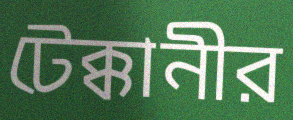
টেক্কানীর